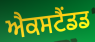
ਐਕਸਟੈਂਡਡ